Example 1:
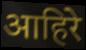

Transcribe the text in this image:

आहिरे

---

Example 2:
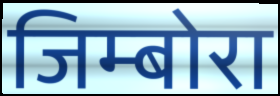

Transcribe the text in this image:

जिम्बोरा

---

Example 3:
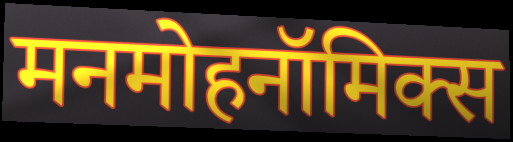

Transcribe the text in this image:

मनमोहनॉमिक्स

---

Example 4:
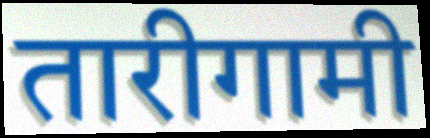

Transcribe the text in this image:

तारीगामी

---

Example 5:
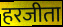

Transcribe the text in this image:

हरजीता